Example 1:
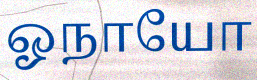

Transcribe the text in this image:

ஓநாயோ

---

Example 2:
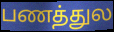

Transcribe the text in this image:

பணத்துல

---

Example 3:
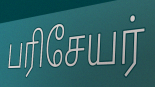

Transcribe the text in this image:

பரிசேயர்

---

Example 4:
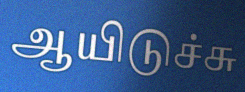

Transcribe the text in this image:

ஆயிடுச்சு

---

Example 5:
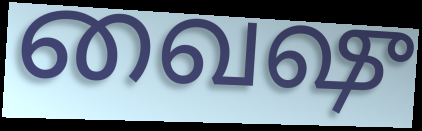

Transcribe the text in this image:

வைஷு